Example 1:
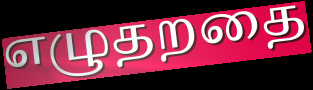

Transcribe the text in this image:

எழுதறதை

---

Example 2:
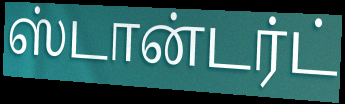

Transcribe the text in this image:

ஸ்டான்டர்ட்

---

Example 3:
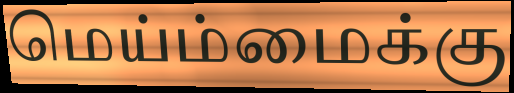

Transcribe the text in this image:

மெய்ம்மைக்கு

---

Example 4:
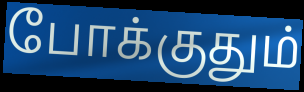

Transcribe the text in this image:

போக்குதும்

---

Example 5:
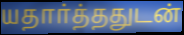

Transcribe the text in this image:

யதார்த்ததுடன்